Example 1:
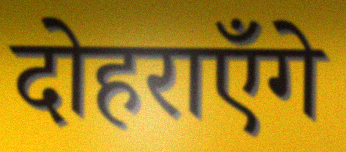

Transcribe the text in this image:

दोहराएँगे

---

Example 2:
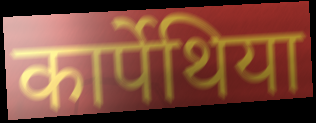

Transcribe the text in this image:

कार्पेथिया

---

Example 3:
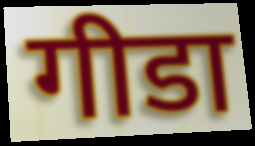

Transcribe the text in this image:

गीडा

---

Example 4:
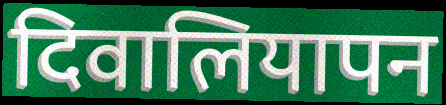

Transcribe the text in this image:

दिवालियापन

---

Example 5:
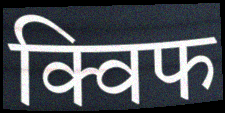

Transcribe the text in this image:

क्विफ